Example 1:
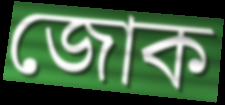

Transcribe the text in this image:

জোক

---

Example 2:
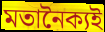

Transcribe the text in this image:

মতানৈক্যই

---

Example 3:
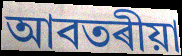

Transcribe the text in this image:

আবতৰীয়া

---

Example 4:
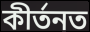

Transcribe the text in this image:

কীৰ্তনত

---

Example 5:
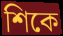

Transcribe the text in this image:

শিকে